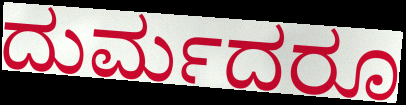
ದುರ್ಮದರೂ